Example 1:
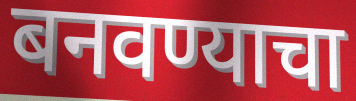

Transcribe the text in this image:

बनवण्याचा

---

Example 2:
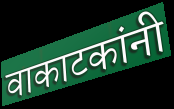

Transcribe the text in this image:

वाकाटकांनी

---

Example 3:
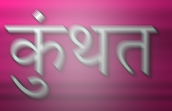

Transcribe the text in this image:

कुंथत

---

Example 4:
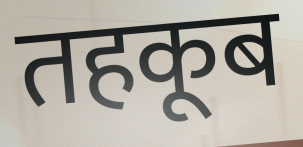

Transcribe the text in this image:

तहकूब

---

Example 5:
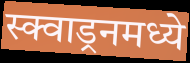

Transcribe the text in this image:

स्क्वाड्रनमध्ये